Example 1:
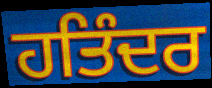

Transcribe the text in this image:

ਹਤਿੰਦਰ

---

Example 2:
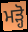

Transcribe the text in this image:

ਮੜ੍ਹੋ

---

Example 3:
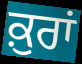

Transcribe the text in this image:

ਕ਼ੁਰਾਂ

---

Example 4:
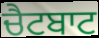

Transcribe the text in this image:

ਚੈਟਬਾਟ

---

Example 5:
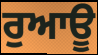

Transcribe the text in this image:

ਰੁਆਊ